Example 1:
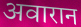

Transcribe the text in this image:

अवारान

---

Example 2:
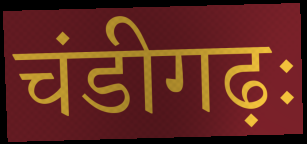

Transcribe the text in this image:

चंडीगढ़ः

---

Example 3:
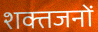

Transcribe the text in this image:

शक्तजनों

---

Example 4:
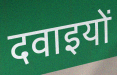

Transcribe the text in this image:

दवाइयों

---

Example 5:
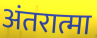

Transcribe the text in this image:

अंतरात्मा